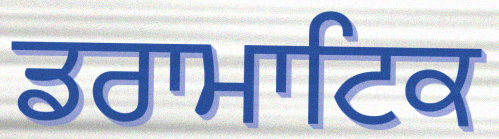
ਡਰਾਮਾਟਿਕ